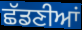
ਛੱਡਣੀਆਂ